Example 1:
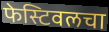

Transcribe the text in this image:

फेस्टिवलचा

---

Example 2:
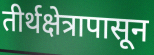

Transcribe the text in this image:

तीर्थक्षेत्रापासून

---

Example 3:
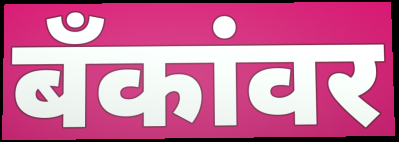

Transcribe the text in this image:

बँकांवर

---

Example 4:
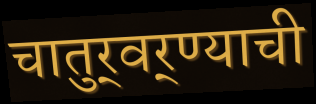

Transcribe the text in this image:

चातुर्वर्ण्याची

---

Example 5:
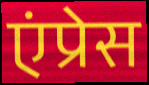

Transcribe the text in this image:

एंप्रेस